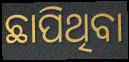
ଛାପିଥିବା